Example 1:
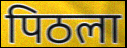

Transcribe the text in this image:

पिठला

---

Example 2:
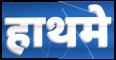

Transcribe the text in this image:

हाथमे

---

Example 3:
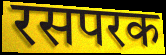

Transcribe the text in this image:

रसपरक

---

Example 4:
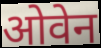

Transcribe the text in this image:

ओवेन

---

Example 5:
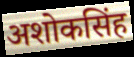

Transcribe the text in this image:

अशोकसिंह